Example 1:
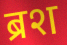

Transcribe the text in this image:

ब्रश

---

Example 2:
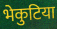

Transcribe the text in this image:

भेकुटिया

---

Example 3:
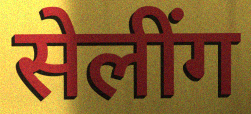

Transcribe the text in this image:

सेलींग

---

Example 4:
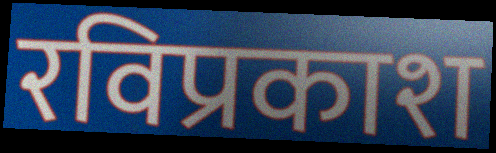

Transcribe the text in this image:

रविप्रकाश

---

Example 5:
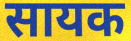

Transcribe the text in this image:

सायक